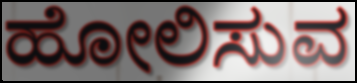
ಹೋಲಿಸುವ